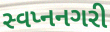
સ્વપ્નનગરી